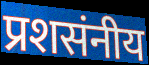
प्रशसंनीय